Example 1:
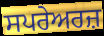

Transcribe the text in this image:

ਸਪਰੇਅਰਜ਼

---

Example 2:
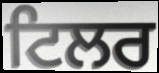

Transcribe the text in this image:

ਟਿਲਰ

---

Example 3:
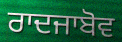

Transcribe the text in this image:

ਰਾਦਜਾਬੋਵ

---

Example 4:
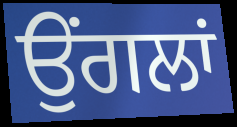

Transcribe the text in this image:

ਉਂਗਲਾਂ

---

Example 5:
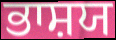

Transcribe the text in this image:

ਭਾਸ਼ਯ